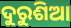
ଦୁରୁଶିଆ